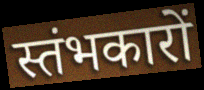
स्तंभकारों